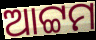
ଆଟ୍ଟମ